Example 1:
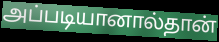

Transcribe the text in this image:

அப்படியானால்தான்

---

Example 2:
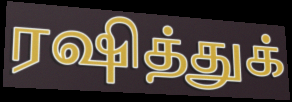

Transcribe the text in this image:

ரஷித்துக்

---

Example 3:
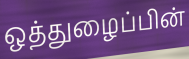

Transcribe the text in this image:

ஒத்துழைப்பின்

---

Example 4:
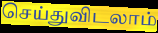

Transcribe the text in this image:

செய்துவிடலாம்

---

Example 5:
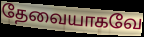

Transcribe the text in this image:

தேவையாகவே